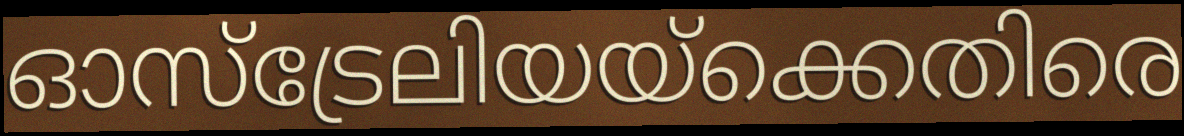
ഓസ്ട്രേലിയയ്ക്കെതിരെ